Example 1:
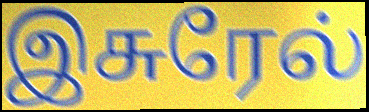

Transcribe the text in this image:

இசுரேல்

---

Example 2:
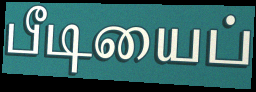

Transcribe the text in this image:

பீடியைப்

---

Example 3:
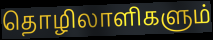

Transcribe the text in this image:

தொழிலாளிகளும்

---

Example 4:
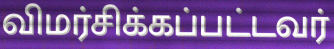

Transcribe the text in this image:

விமர்சிக்கப்பட்டவர்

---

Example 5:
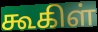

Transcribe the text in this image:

கூகிள்